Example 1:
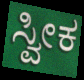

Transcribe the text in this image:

ಸ್ವೀಕ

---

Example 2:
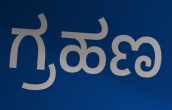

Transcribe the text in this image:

ಗ್ರಹಣ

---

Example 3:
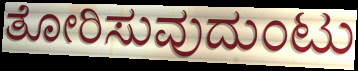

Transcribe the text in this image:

ತೋರಿಸುವುದುಂಟು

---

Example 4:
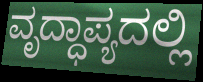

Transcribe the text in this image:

ವೃದ್ಧಾಪ್ಯದಲ್ಲಿ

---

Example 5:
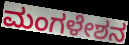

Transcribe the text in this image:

ಮಂಗಳೇಶನ